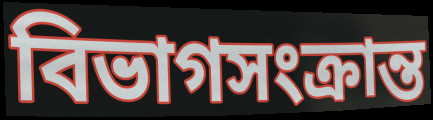
বিভাগসংক্রান্ত